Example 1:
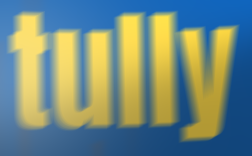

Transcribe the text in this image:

tully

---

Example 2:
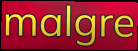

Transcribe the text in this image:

malgre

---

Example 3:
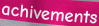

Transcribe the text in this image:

achivements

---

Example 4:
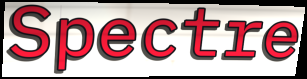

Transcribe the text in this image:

Spectre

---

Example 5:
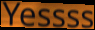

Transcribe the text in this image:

Yessss